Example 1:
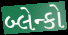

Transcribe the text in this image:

બ્લેન્કો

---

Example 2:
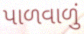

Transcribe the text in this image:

પાળવાળું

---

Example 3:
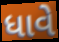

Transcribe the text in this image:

ધાવે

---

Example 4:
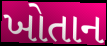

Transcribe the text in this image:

ખોતાન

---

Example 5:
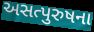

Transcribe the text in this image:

અસત્પુરુષના